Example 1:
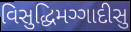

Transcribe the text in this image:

વિસુદ્ધિમગ્ગાદીસુ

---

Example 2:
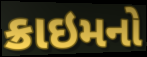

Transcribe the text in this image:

ક્રાઇમનો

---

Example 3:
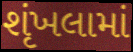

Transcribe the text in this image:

શૃંખલામાં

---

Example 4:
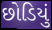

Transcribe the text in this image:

છોડિયું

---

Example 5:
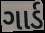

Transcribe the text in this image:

ગાર્ડ